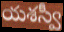
యశస్వీ